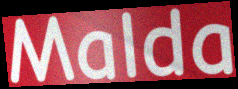
Malda